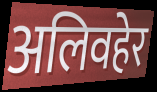
अलिवहेर